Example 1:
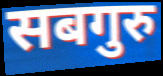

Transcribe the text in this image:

सबगुरु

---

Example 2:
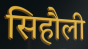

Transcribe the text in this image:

सिहौली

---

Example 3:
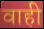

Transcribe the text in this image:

वाही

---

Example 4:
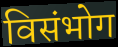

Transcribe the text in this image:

विसंभोग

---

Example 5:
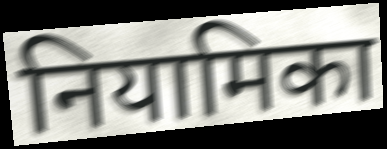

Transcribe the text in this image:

नियामिका